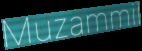
Muzammil